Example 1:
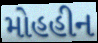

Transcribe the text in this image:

મોહહીન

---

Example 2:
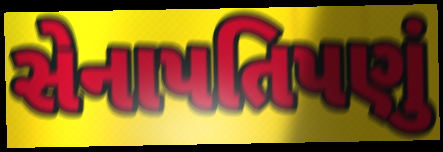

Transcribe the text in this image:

સેનાપતિપણું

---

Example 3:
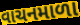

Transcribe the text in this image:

વાચનમાળા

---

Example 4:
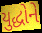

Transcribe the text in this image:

યુદ્ધોને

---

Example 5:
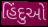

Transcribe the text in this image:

હિંદુઓ